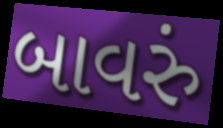
બાવરું